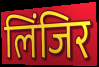
लिंजिर